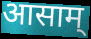
आसाम्